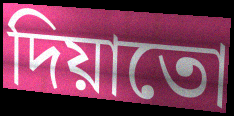
দিয়াতো